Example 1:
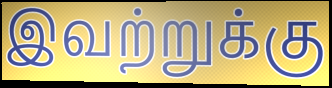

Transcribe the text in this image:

இவற்றுக்கு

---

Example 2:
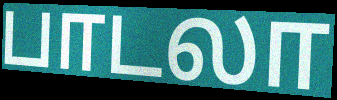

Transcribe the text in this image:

பாடலா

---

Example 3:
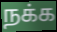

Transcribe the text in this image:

நக்க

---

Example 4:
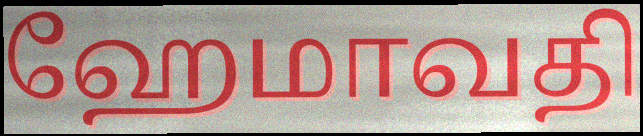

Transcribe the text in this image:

ஹேமாவதி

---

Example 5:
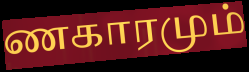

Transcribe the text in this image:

ணகாரமும்